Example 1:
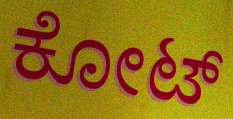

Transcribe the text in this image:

ಕೋಟ್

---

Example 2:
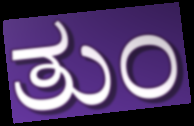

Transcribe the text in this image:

ತುಂ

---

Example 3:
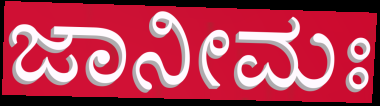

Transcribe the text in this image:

ಜಾನೀಮಃ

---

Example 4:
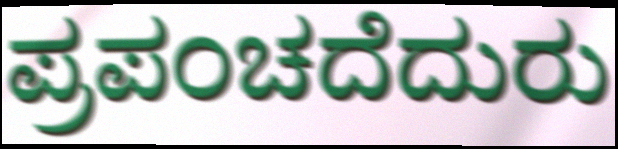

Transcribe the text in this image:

ಪ್ರಪಂಚದೆದುರು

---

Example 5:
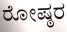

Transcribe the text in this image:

ರೋಷ್ಠರ